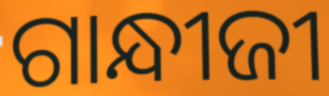
ଗାନ୍ଧୀଜୀ